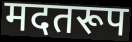
मदतरूप